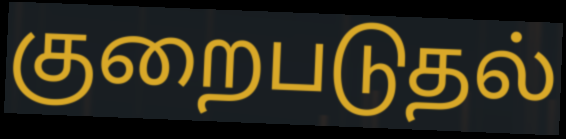
குறைபடுதல்